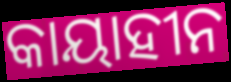
କାୟାହୀନ